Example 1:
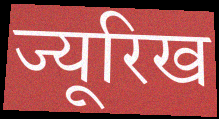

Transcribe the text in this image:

ज्यूरिख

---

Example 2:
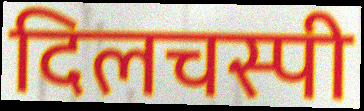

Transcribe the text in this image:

दिलचस्पी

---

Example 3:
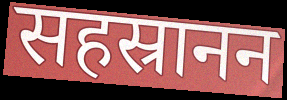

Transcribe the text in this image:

सहस्रानन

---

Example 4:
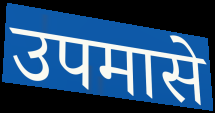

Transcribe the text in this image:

उपमासे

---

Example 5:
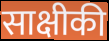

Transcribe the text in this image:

साक्षीकी